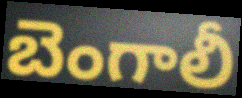
బెంగాలీ